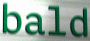
bald